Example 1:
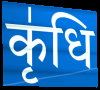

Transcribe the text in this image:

कृ॑धि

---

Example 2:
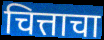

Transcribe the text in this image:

चित्ताचा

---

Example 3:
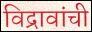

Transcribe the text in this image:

विद्रावांची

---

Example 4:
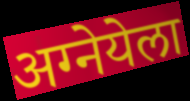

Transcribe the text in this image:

अग्नेयेला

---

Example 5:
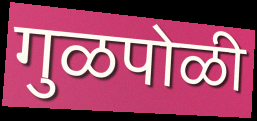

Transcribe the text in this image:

गुळपोळी